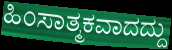
ಹಿಂಸಾತ್ಮಕವಾದದ್ದು